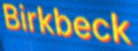
Birkbeck